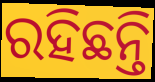
ରହିଛନ୍ତି